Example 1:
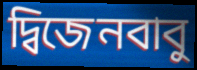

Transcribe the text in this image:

দ্বিজেনবাবু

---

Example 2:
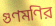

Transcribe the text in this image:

গুণমণির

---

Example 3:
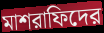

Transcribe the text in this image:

মাশরাফিদের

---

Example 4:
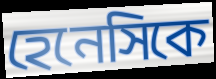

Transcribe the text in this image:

হেনেসিকে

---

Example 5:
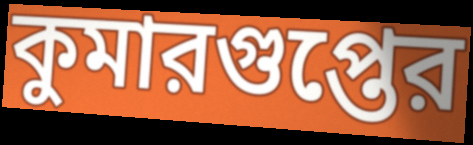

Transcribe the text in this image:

কুমারগুপ্তের